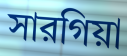
সারগিয়া